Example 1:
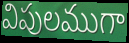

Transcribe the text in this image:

విపులముగా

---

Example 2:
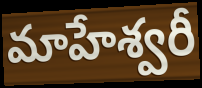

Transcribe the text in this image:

మాహేశ్వరీ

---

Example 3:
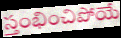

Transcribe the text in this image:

స్తంభించిపోయే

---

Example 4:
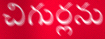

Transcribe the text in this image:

చిగుర్లను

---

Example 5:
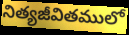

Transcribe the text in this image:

నిత్యజీవితములో